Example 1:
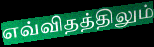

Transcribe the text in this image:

எவ்விதத்திலும்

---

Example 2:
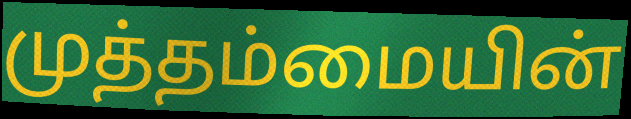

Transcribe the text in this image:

முத்தம்மையின்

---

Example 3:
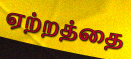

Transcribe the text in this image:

ஏற்றத்தை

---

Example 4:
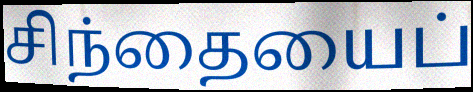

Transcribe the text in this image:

சிந்தையைப்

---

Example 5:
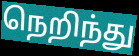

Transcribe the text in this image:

நெறிந்து